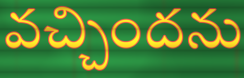
వచ్చిందను